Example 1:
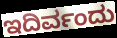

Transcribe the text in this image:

ಇದಿರ್ವಂದು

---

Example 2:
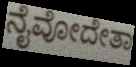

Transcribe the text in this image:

ನೈವೋದೇತಾ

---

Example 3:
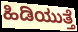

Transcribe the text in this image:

ಹಿಡಿಯುತ್ತೆ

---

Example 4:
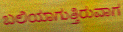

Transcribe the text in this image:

ಬಲಿಯಾಗುತ್ತಿರುವಾಗ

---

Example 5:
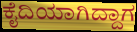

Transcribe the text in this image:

ಕೈದಿಯಾಗಿದ್ದಾಗ